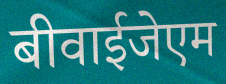
बीवाईजेएम